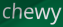
chewy